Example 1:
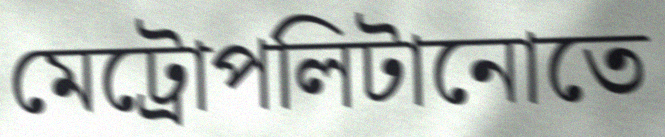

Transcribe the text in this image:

মেট্রোপলিটানোতে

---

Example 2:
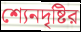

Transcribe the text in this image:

শ্যেনদৃষ্টির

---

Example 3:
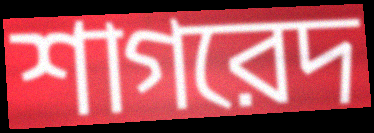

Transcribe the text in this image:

শাগরেদ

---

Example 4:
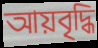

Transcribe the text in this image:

আয়বৃদ্ধি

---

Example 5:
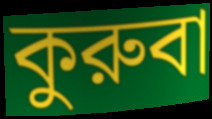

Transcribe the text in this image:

কুরুবা